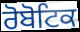
ਰੋਬੋਟਿਕ